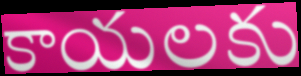
కాయలకు